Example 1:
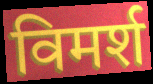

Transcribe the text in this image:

विमर्श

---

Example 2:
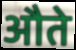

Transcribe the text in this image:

औते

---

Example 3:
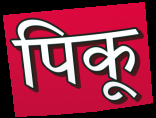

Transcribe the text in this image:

पिकू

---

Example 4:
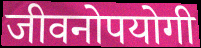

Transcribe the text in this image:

जीवनोपयोगी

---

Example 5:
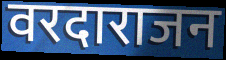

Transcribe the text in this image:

वरदाराजन